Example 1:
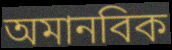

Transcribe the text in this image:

অমানবিক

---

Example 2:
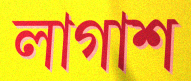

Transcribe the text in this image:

লাগাশ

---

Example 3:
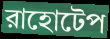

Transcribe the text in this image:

রাহোটেপ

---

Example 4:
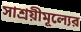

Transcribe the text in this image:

সাশ্রয়ীমূল্যের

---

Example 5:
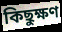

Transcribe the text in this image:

কিছুক্ষণ